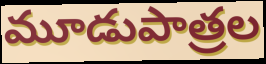
మూడుపాత్రల